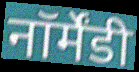
नॉर्मेंडी